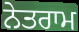
ਨੇਤਰਾਮ